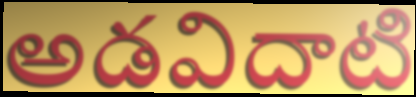
అడవిదాటి